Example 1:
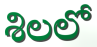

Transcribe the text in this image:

శిలలో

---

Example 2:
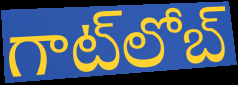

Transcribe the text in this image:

గాట్‍లోబ్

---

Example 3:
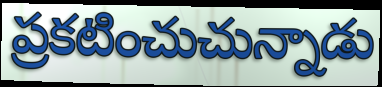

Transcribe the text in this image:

ప్రకటించుచున్నాడు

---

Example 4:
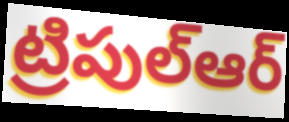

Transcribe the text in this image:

ట్రిపుల్ఆర్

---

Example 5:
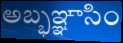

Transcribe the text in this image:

అబ్భఞ్ఞాసిం